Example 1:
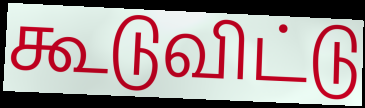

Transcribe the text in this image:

கூடுவிட்டு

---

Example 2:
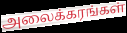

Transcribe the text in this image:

அலைக்கரங்கள்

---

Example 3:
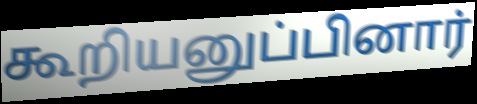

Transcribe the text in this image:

கூறியனுப்பினார்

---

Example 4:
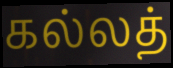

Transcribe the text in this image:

கல்லத்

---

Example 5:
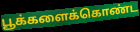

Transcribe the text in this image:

பூக்களைக்கொண்ட